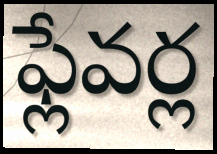
ఫ్లేవర్ల